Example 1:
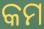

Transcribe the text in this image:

କମ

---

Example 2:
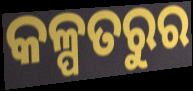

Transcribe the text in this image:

କଳ୍ପତରୁର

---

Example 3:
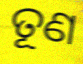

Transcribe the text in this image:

ତୂଣ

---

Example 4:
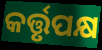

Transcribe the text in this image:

କର୍ତ୍ତୃପକ୍ଷ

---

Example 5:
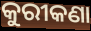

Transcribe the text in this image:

କୁରୀକଣା